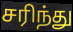
சரிந்து